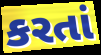
કરતાં